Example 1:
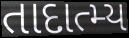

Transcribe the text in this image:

તાદાત્મ્ય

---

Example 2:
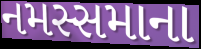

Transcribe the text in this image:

નમસ્સમાના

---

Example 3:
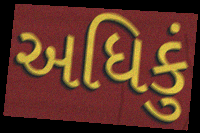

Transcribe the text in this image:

અધિકું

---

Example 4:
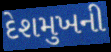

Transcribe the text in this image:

દેશમુખની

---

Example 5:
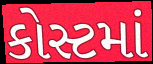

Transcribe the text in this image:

કોસ્ટમાં